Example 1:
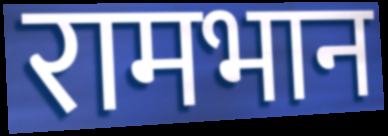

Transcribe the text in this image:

रामभान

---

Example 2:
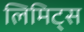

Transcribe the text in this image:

लिमिट्स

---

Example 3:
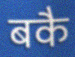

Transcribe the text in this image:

बकै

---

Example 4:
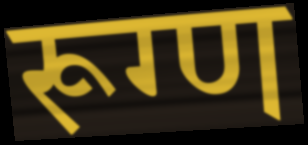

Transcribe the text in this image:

रूग्ण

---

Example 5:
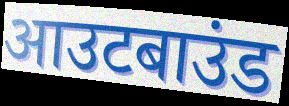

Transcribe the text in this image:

आउटबाउंड